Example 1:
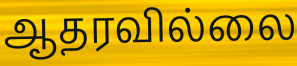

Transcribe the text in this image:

ஆதரவில்லை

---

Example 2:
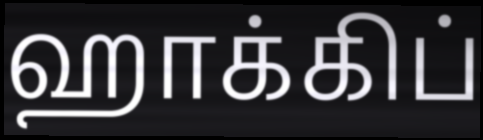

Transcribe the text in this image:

ஹாக்கிப்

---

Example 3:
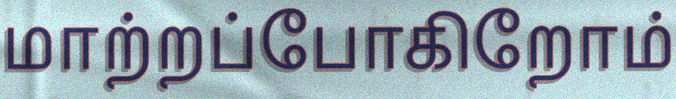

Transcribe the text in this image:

மாற்றப்போகிறோம்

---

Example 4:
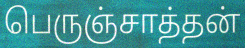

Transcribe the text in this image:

பெருஞ்சாத்தன்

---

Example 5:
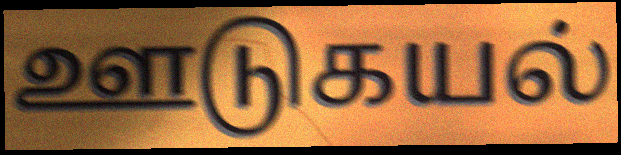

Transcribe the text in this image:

ஊடுகயல்